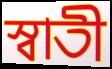
স্বাতী